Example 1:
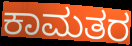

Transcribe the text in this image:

ಕಾಮತರ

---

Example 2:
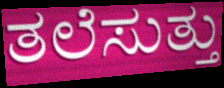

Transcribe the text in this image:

ತಲೆಸುತ್ತು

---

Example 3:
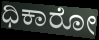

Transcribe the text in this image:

ಧಿಕಾರೋ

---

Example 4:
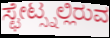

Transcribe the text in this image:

ಸ್ಟೇಟ್ಸ್ನಲ್ಲಿರುವ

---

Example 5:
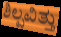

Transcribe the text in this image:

ಶಿಲ್ಪವಿತ್ತು